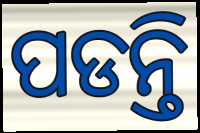
ପଡନ୍ତି